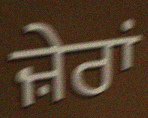
ਜ਼ੇਰਾਂ